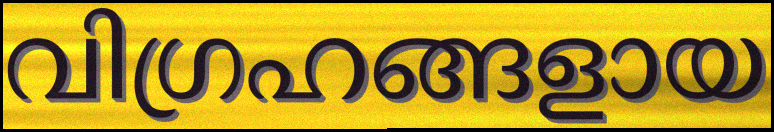
വിഗ്രഹങ്ങളായ